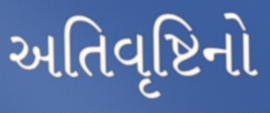
અતિવૃષ્ટિનો